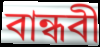
বান্ধবী